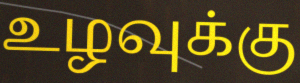
உழவுக்கு